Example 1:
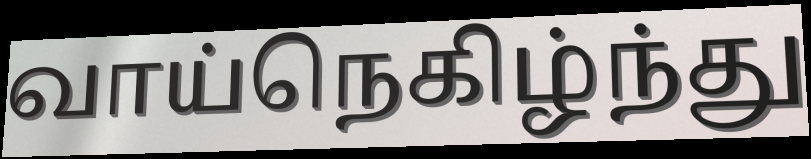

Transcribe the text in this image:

வாய்நெகிழ்ந்து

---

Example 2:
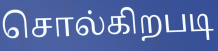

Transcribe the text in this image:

சொல்கிறபடி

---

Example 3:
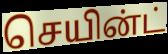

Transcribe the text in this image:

செயின்ட்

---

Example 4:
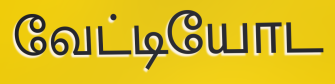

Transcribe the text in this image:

வேட்டியோட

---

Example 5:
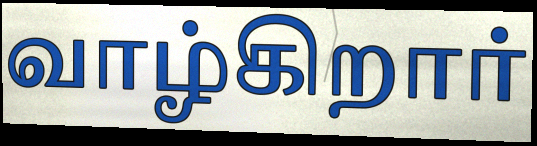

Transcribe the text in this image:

வாழ்கிறார்